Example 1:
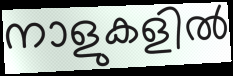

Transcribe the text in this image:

നാളുകളിൽ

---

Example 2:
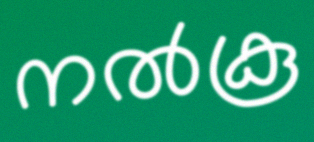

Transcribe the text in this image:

നൽകൂ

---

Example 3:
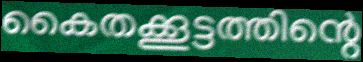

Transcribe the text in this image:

കൈതക്കൂട്ടത്തിന്റെ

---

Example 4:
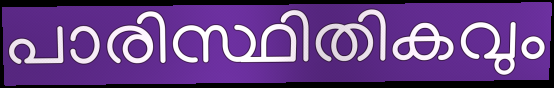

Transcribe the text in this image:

പാരിസ്ഥിതികവും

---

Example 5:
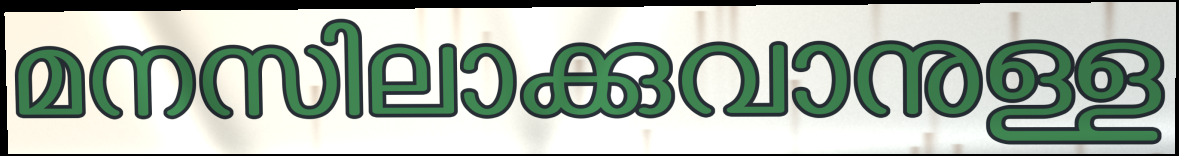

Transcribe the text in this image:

മനസിലാക്കുവാനുള്ള